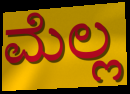
ಮೆಲ್ಲ